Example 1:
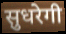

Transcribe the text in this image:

सुधरेगी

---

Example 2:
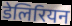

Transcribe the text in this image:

डेलिरियन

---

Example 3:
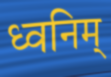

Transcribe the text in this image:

ध्वनिम्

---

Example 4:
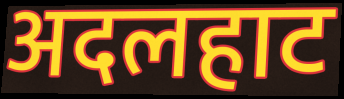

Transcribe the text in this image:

अदलहाट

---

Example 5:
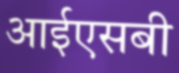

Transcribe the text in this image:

आईएसबी